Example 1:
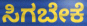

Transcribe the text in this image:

ಸಿಗಬೇಕೆ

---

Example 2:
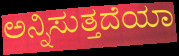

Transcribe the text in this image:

ಅನ್ನಿಸುತ್ತದೆಯಾ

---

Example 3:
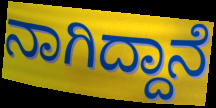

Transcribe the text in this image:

ನಾಗಿದ್ದಾನೆ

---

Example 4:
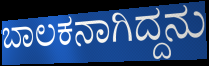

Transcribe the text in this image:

ಬಾಲಕನಾಗಿದ್ದನು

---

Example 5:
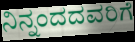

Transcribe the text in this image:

ನಿನ್ನಂದದವರಿಗೆ